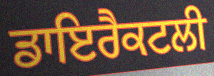
ਡਾਇਰੈਕਟਲੀ